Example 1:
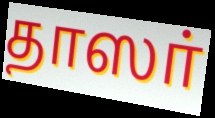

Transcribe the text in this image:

தாஸர்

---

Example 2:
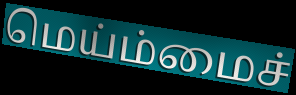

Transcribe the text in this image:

மெய்ம்மைச்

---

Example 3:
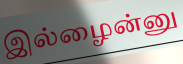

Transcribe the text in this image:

இல்ழைன்னு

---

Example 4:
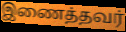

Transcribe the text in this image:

இணைத்தவர்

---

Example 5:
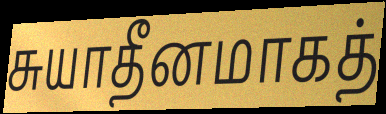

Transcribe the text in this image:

சுயாதீனமாகத்